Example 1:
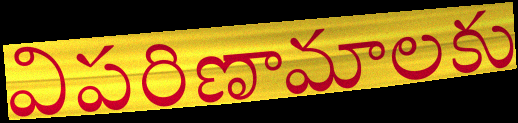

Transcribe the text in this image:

విపరిణామాలకు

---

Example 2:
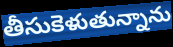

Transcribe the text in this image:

తీసుకెళుతున్నాను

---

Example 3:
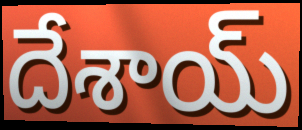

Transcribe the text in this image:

దేశాయ్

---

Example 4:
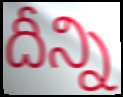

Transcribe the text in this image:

దీన్ని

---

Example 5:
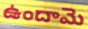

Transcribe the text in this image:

ఉందామె